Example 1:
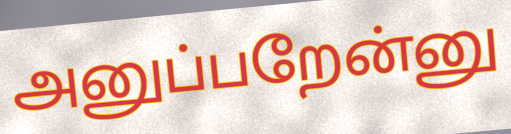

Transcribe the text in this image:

அனுப்பறேன்னு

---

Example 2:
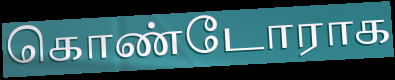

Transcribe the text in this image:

கொண்டோராக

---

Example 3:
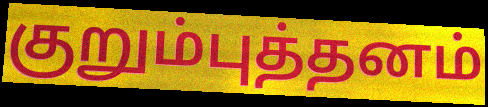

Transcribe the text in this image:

குறும்புத்தனம்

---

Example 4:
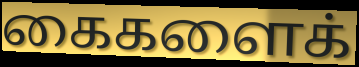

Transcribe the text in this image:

கைகளைக்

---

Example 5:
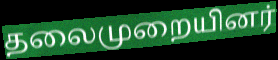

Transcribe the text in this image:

தலைமுறையினர்